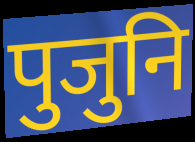
पुजुनि